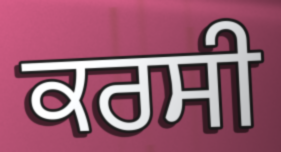
ਕਰਸੀ